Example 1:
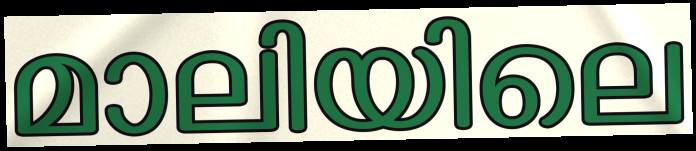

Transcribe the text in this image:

മാലിയിലെ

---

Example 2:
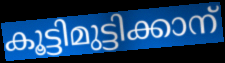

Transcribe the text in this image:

കൂട്ടിമുട്ടിക്കാന്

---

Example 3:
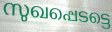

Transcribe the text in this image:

സുഖപ്പെടട്ടെ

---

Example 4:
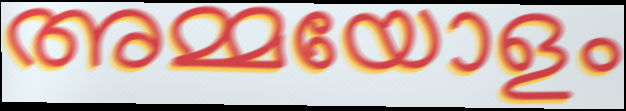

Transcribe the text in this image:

അമ്മയോളം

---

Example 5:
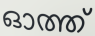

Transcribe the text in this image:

ഓത്ത്